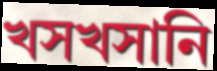
খসখসানি